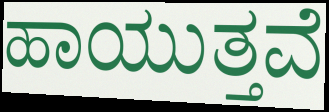
ಹಾಯುತ್ತವೆ